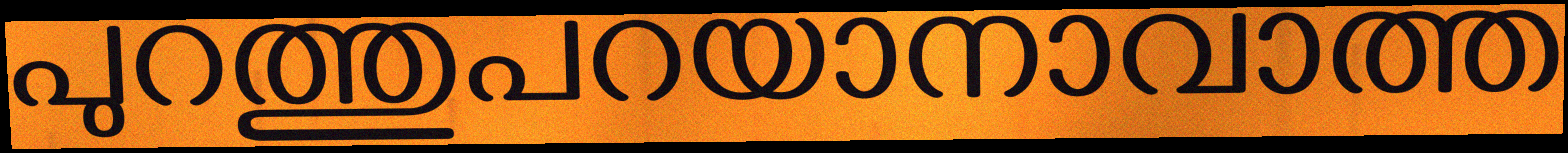
പുറത്തുപറയാനാവാത്ത